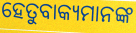
ହେତୁବାକ୍ୟମାନଙ୍କ